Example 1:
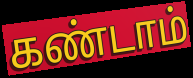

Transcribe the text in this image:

கண்டாம்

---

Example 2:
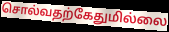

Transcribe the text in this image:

சொல்வதற்கேதுமில்லை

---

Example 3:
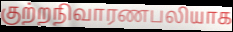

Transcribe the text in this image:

குற்றநிவாரணபலியாக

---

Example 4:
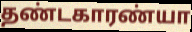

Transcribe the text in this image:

தண்டகாரண்யா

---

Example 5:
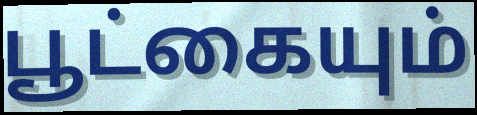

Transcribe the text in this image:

பூட்கையும்